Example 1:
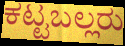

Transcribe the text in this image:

ಕಟ್ಟಬಲ್ಲರು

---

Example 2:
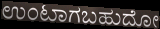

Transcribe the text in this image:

ಉಂಟಾಗಬಹುದೋ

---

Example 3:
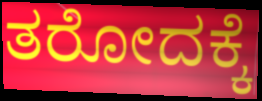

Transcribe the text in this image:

ತರೋದಕ್ಕೆ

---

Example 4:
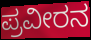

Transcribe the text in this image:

ಪ್ರವೀರನ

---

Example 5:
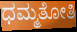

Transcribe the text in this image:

ಧಮ್ಮತೋತಿ